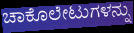
ಚಾಕೊಲೇಟುಗಳನ್ನು